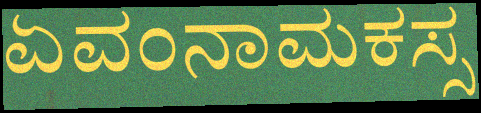
ಏವಂನಾಮಕಸ್ಸ